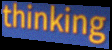
thinking